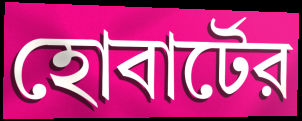
হোবার্টের